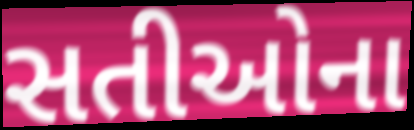
સતીઓના